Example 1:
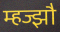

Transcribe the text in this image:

म्हज्झौ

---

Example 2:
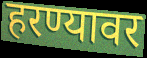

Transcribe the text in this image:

हरण्यावर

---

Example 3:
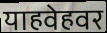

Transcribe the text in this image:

याहवेहवर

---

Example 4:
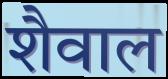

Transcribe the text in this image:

शैवाल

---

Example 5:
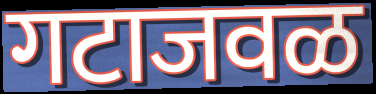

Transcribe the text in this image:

गटाजवळ